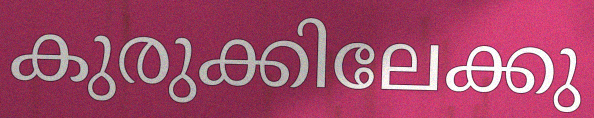
കുരുക്കിലേക്കു